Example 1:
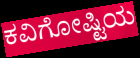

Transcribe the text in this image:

ಕವಿಗೋಷ್ಟಿಯ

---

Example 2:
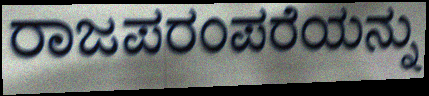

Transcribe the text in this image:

ರಾಜಪರಂಪರೆಯನ್ನು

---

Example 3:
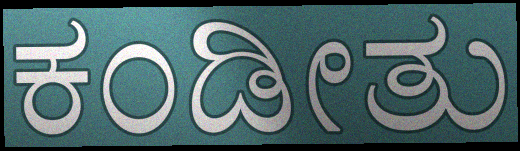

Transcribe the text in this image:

ಕಂಡೀತು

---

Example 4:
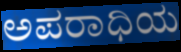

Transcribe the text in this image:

ಅಪರಾಧಿಯ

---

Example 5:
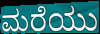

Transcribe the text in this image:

ಮರೆಯು